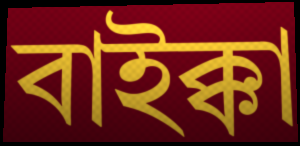
বাইক্কা